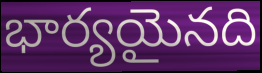
భార్యయైనది